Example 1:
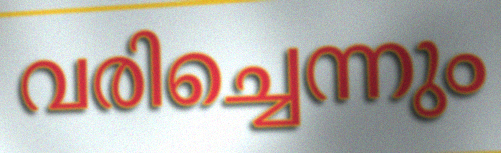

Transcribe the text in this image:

വരിച്ചെന്നും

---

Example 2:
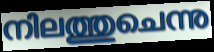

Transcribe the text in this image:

നിലത്തുചെന്നു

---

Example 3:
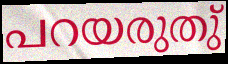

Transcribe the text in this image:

പറയരുതു്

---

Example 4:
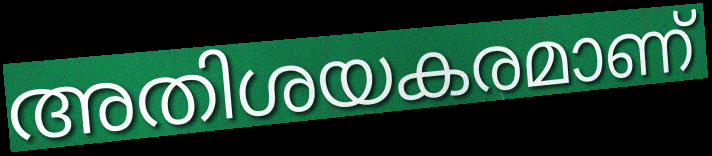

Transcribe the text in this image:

അതിശയകരമാണ്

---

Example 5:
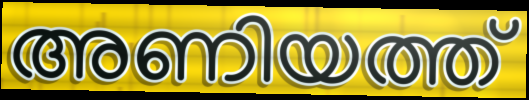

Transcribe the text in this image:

അണിയത്ത്